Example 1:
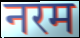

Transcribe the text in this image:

नरम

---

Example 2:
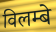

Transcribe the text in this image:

विलम्बे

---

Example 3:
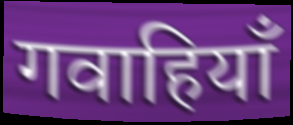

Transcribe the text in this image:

गवाहियाँ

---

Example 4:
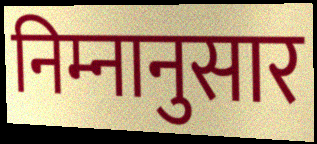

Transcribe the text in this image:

निम्‍नानुसार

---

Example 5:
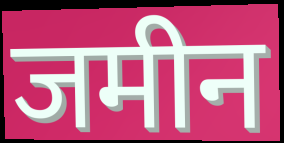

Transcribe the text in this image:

जमीन